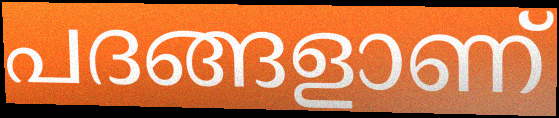
പദങ്ങളാണ്